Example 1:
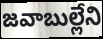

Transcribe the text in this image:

జవాబుల్లేని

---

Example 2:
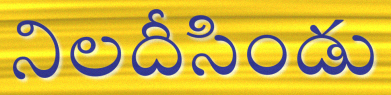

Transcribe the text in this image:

నిలదీసిండు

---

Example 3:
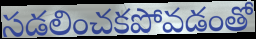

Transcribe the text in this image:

సడలించకపోవడంతో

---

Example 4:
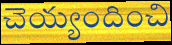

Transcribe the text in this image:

చెయ్యందించి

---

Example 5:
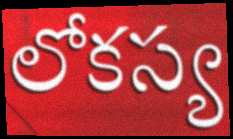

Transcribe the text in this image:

లోకస్య